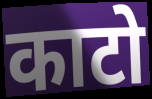
काटो